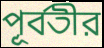
পূর্বতীর